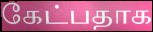
கேட்பதாக